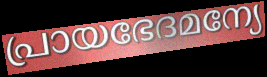
പ്രായഭേദമന്യേ